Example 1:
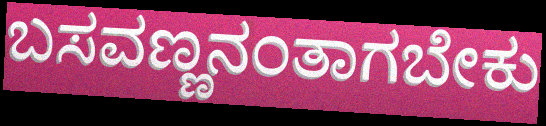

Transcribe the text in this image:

ಬಸವಣ್ಣನಂತಾಗಬೇಕು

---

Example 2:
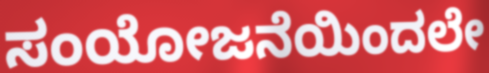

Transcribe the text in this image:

ಸಂಯೋಜನೆಯಿಂದಲೇ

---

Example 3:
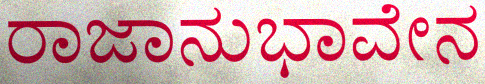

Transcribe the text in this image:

ರಾಜಾನುಭಾವೇನ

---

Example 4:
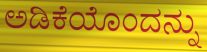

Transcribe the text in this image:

ಅಡಿಕೆಯೊಂದನ್ನು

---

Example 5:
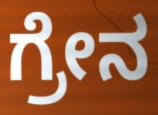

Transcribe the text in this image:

ಗ್ರೇನ